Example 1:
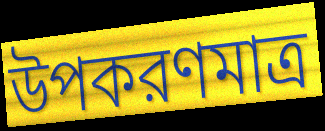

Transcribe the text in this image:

উপকরণমাত্র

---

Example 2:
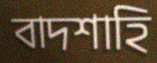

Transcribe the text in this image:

বাদশাহি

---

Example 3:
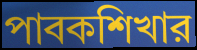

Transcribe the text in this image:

পাবকশিখার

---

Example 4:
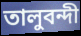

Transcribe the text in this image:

তালুবন্দী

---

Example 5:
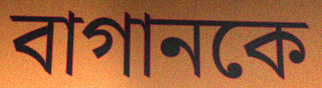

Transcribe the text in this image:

বাগানকে